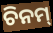
ଚିନମ୍